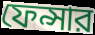
ফেন্সার